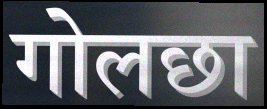
गोलछा